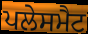
ਪਲੇਸਮੈਟ